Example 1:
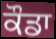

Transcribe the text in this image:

ਕੌਡਾ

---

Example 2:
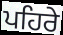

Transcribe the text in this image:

ਪਹਿਰੇ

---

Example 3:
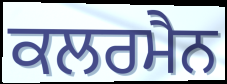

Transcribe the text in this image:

ਕਲਰਮੈਨ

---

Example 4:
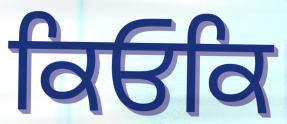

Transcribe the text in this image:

ਕਿਓਕਿ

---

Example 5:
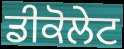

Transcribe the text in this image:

ਡੀਕੋਲੇਟ